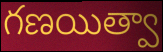
గణయిత్వా